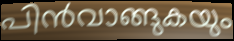
പിൻവാങ്ങുകയും